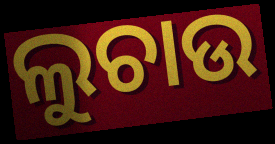
ଲୁଚାଉ